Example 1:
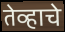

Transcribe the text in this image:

तेव्हाचे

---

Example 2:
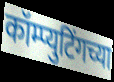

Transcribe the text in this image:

कॉम्प्युटिंगच्या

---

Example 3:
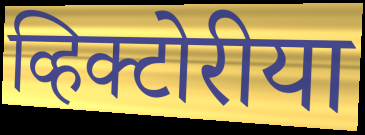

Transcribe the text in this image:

व्हिक्टोरीया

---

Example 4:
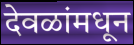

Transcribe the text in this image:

देवळांमधून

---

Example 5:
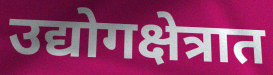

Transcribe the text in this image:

उद्योगक्षेत्रात